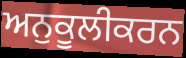
ਅਨੁਕੂਲੀਕਰਨ